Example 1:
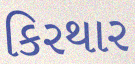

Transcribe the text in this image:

કિરથાર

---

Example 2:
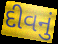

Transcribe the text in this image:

દીવનું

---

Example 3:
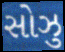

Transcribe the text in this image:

સોઝુ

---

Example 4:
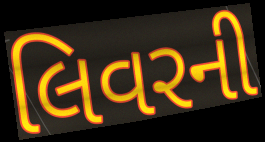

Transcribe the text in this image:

લિવરની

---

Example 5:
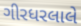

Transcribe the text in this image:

ગીરધરલાલે